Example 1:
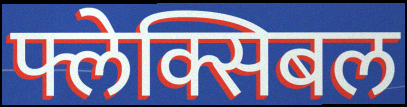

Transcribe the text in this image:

फ्लेक्सिबल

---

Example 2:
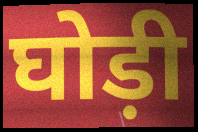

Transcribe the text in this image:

घोड़ी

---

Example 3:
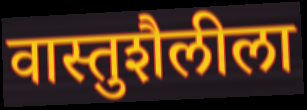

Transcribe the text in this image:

वास्तुशैलीला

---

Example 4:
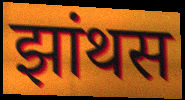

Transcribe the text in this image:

झांथस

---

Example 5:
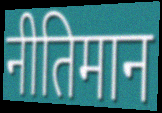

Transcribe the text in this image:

नीतिमान